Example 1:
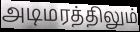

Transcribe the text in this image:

அடிமரத்திலும்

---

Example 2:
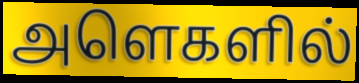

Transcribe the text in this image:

அளெகளில்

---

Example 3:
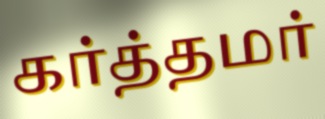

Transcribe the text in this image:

கர்த்தமர்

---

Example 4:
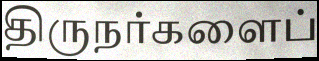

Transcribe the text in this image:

திருநர்களைப்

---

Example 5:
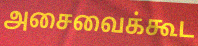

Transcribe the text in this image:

அசைவைக்கூட